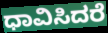
ಧಾವಿಸಿದರೆ